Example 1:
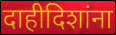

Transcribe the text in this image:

दाहीदिशांना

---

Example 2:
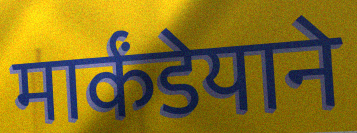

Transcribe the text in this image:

मार्कंडेयाने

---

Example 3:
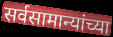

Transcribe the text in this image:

सर्वसामान्यांच्या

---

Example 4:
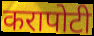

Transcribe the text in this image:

करापोटी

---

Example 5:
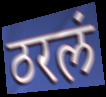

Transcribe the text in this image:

ठरलं